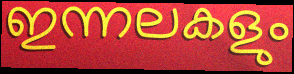
ഇന്നലകളും